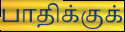
பாதிக்குக்